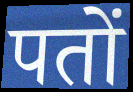
पतों